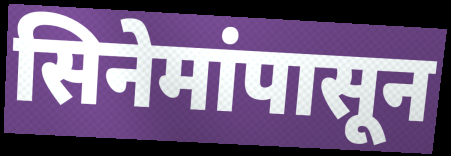
सिनेमांपासून